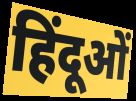
हिंदूओं